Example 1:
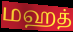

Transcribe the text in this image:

மஹத்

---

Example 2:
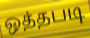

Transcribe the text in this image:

ஒத்தபடி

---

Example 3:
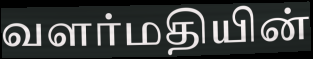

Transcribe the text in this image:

வளர்மதியின்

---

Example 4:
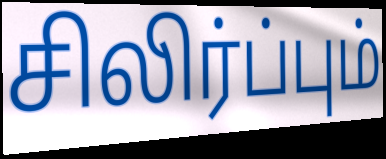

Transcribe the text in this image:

சிலிர்ப்பும்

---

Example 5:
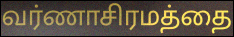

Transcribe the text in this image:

வர்ணாசிரமத்தை